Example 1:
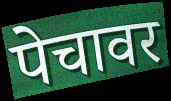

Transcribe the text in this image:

पेचावर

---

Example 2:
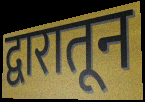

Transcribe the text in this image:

द्वारातून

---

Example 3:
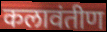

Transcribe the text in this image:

कलावंतीण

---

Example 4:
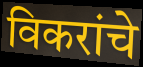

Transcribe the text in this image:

विकरांचे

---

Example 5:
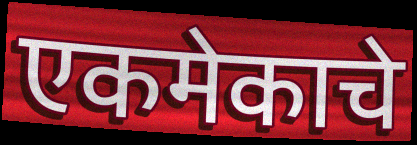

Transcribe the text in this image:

एकमेकाचे